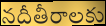
నదీతీరాలకు